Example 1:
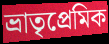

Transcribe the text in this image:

ভ্রাতৃপ্রেমিক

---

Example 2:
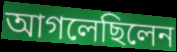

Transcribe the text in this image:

আগলেছিলেন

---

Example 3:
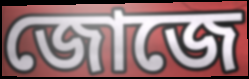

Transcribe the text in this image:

জোজে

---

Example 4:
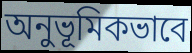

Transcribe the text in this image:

অনুভূমিকভাবে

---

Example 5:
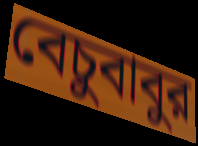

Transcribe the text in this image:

বেচুবাবুর